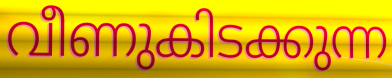
വീണുകിടക്കുന്ന